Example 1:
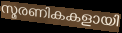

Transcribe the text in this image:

സ്മരണികകളായി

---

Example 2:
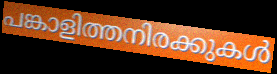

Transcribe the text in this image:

പങ്കാളിത്തനിരക്കുകൾ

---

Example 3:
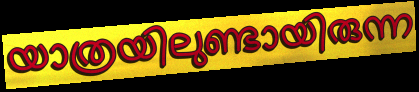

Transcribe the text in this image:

യാത്രയിലുണ്ടായിരുന്ന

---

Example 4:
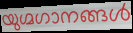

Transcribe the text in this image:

യുഗ്മഗാനങ്ങൾ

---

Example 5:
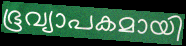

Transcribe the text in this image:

ഭൂവ്യാപകമായി